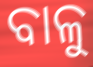
ବାଳୁ